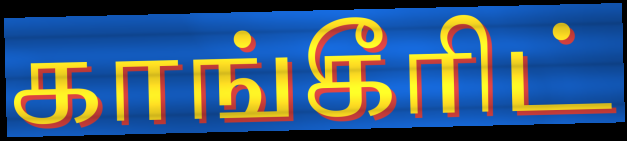
காங்கீரிட்